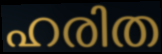
ഹരിത